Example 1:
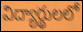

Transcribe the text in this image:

విద్యార్థులలో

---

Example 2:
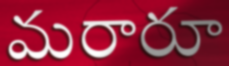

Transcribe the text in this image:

మరారూ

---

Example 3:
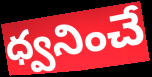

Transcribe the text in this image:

ధ్వనించే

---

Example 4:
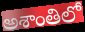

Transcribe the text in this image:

అశాంతిలో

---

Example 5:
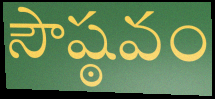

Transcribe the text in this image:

సౌష్ఠవం